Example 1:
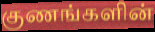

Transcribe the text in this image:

குணங்களின்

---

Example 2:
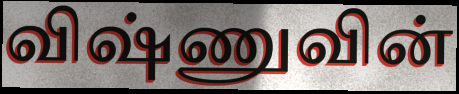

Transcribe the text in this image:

விஷ்ணுவின்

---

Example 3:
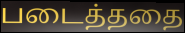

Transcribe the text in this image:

படைத்ததை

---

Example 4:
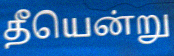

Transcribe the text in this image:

தீயென்று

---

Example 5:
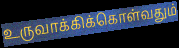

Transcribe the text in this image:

உருவாக்கிக்கொள்வதும்